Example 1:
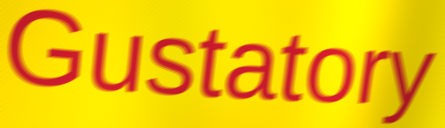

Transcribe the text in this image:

Gustatory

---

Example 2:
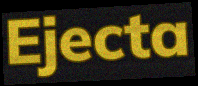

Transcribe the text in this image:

Ejecta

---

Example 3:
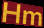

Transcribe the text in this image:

Hm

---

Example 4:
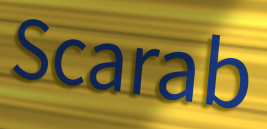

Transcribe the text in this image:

Scarab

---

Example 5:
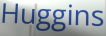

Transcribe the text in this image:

Huggins